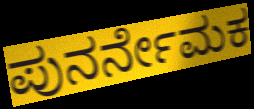
ಪುನರ್ನೇಮಕ